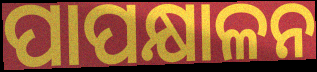
ପାପକ୍ଷାଳନ